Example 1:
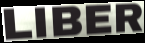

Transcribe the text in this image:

LIBER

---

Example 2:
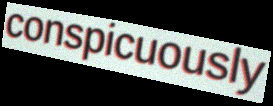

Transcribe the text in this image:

conspicuously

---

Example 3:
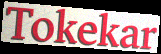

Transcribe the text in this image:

Tokekar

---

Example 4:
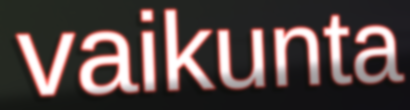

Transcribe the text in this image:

vaikunta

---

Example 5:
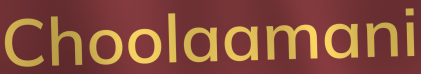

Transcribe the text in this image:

Choolaamani